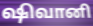
ஷிவானி